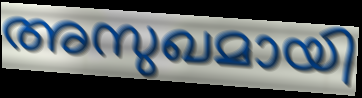
അസുഖമായി